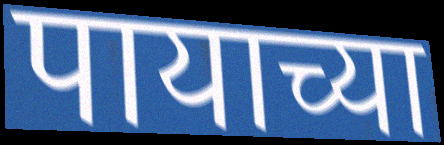
पायाच्या